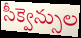
సీక్వెన్సుల